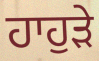
ਹਾਹੁੜੇ